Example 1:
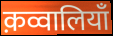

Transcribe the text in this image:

क़व्वालियाँ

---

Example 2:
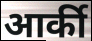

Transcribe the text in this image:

आर्की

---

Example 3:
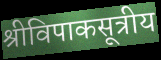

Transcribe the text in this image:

श्रीविपाकसूत्रीय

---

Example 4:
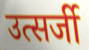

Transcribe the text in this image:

उत्सर्जी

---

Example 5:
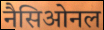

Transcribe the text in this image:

नैसिओनल